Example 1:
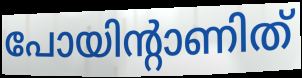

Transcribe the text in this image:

പോയിന്റാണിത്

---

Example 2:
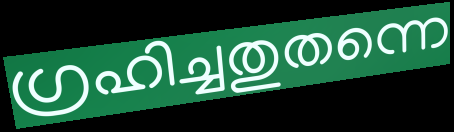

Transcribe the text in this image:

ഗ്രഹിച്ചതുതന്നെ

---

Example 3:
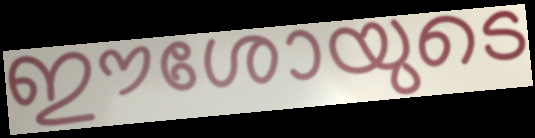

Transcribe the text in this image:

ഈശോയുടെ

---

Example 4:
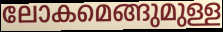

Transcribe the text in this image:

ലോകമെങ്ങുമുള്ള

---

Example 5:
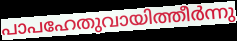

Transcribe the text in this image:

പാപഹേതുവായിത്തീർന്നു